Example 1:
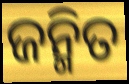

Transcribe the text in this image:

ଜନ୍ମିତ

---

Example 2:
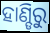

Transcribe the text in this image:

ହାଣ୍ଡିରୁ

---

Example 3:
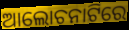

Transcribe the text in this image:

ଆଲୋଚନାଟିରେ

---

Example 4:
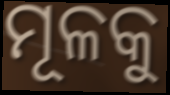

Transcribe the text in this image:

ମୂଳକୁ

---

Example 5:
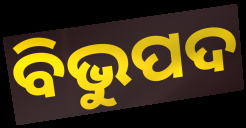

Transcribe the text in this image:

ବିଭୁପଦ